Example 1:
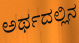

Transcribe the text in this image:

ಅರ್ಥದಲ್ಲಿನ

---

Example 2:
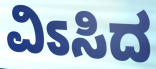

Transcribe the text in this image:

ವಿಽಸಿದ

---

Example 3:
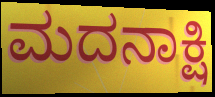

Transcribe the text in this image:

ಮದನಾಕ್ಷಿ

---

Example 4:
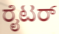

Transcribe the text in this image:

ರೈಟರ್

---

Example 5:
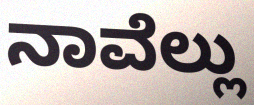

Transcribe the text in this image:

ನಾವೆಲ್ಲು